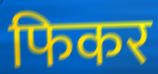
फिकर